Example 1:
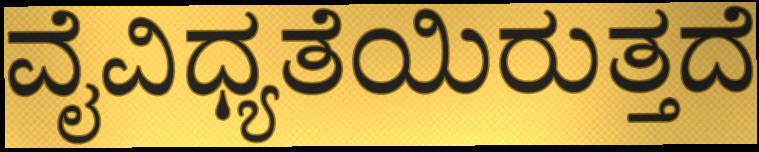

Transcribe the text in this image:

ವೈವಿಧ್ಯತೆಯಿರುತ್ತದೆ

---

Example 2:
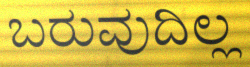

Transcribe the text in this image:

ಬರುವುದಿಲ್ಲ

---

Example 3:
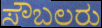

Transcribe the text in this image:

ಸೌಬಲರು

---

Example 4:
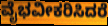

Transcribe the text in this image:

ವೈಭವೀಕರಿಸಿದರೆ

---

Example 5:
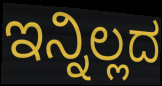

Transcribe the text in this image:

ಇನ್ನಿಲ್ಲದ